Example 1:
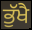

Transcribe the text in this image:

ਭੁੱਖੈ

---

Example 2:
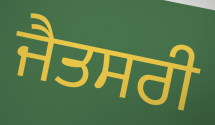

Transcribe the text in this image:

ਜੈਤਸਰੀ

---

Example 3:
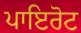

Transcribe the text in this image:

ਪਾਇਰੋਟ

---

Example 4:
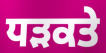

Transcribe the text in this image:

ਧੜਕਤੇ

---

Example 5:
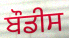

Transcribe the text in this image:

ਬੌਡੀਸ